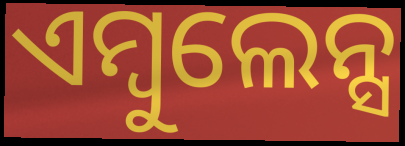
ଏମ୍ବୁଲେନ୍ସ